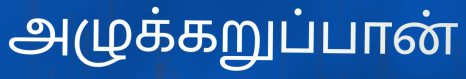
அழுக்கறுப்பான்